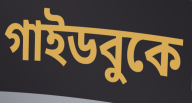
গাইডবুকে